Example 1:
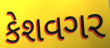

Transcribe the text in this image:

કેશવગર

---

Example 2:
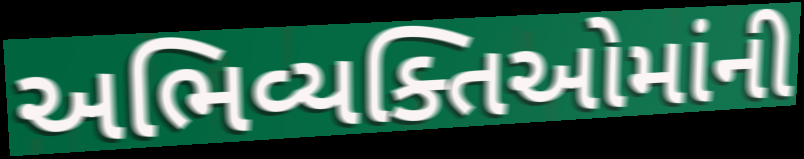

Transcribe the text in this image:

અભિવ્યક્તિઓમાંની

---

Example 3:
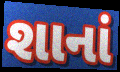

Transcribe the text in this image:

શાનાં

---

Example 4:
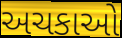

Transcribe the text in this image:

અચકાઓ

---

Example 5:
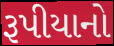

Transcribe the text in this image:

રૂપીયાનો